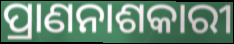
ପ୍ରାଣନାଶକାରୀ